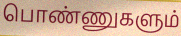
பொண்ணுகளும்